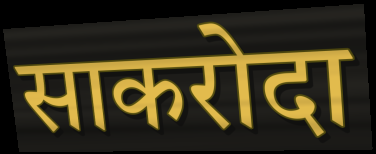
साकरोदा